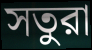
সতুরা